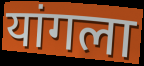
यांगला